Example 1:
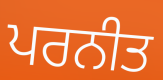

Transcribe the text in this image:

ਪਰਨੀਤ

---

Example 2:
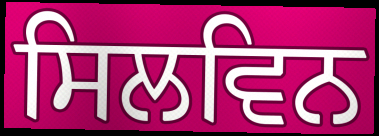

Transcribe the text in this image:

ਸਿਲਵਿਨ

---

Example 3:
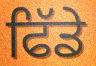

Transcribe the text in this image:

ਫਿੱਡੇ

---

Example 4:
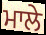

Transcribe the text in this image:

ਮਾਲੇ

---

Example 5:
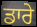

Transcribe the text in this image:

ਡਾਰੇ